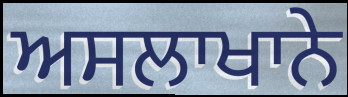
ਅਸਲਾਖਾਨੇ